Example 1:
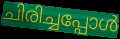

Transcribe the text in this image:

ചിരിച്ചപ്പോൾ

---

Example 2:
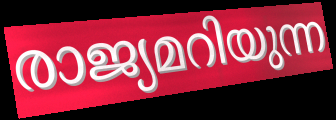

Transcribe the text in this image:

രാജ്യമറിയുന്ന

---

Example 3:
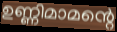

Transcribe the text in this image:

ഉണ്ണിമാമന്റെ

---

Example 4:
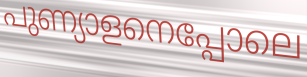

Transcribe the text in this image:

പുണ്യാളനെപ്പോലെ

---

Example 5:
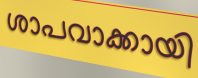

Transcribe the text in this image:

ശാപവാക്കായി